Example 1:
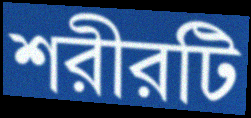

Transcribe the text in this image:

শরীরটি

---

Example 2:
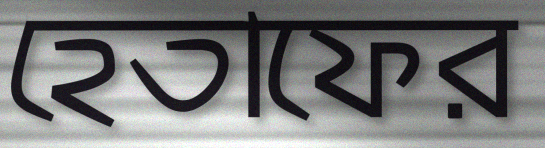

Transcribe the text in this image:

হেতাফের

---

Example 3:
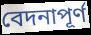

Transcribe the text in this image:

বেদনাপূর্ণ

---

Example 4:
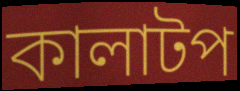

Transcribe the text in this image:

কালাটপ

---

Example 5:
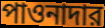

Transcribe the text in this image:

পাওনাদার